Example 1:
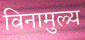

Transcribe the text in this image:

विनामुल्य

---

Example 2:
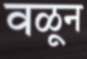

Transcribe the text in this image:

वळून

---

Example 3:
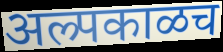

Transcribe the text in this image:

अल्पकाळच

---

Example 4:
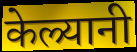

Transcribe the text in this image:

केल्यानी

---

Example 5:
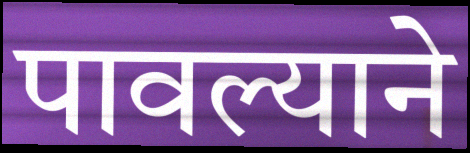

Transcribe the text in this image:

पावल्याने